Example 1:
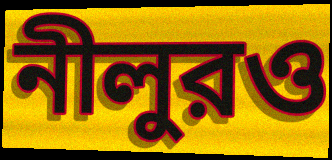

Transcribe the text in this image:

নীলুরও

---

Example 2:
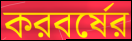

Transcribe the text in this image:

করবর্ষের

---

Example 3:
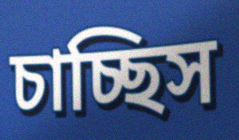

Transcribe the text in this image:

চাচ্ছিস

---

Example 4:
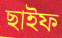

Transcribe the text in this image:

ছাইফ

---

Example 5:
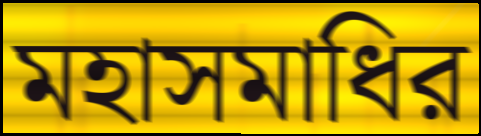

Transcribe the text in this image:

মহাসমাধির